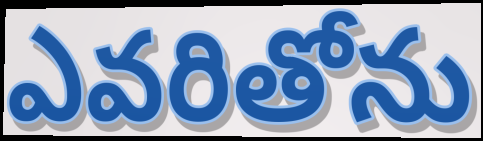
ఎవరితోను